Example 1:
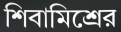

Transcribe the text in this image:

শিবামিশ্রের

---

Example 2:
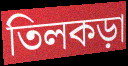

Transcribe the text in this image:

তিলকড়া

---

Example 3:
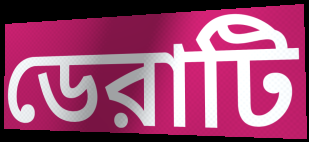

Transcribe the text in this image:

ডেরাটি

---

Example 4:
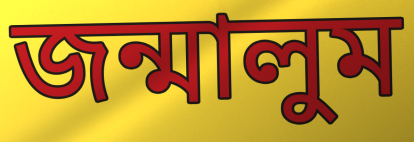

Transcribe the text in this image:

জন্মালুম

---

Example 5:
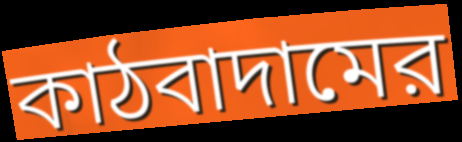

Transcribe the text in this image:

কাঠবাদামের